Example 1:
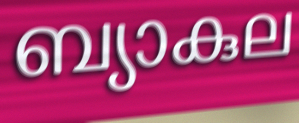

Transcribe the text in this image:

ബ്യാകുല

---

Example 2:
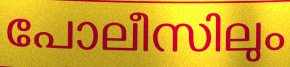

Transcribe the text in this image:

പോലീസിലും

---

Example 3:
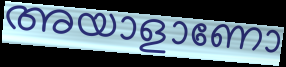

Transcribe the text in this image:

അയാളാണോ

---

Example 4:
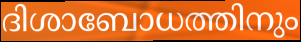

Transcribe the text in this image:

ദിശാബോധത്തിനും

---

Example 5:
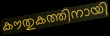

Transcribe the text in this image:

കൗതുകത്തിനായി